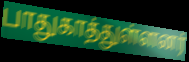
பாதுகாத்துள்ளனர்